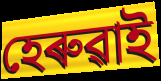
হেৰুৱাই